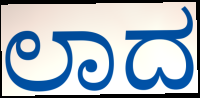
ಲಾದ